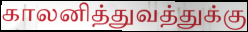
காலனித்துவத்துக்கு